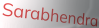
Sarabhendra